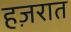
ह़ज़रात